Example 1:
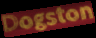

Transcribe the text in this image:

Dogston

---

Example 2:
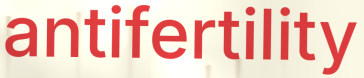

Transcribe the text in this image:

antifertility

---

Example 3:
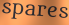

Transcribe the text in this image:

spares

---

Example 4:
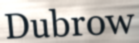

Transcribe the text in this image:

Dubrow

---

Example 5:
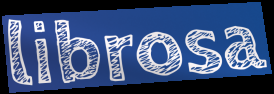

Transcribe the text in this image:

librosa